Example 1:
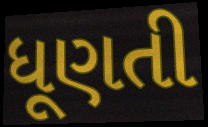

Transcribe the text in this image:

ધૂણતી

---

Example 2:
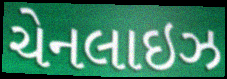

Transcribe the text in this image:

ચેનલાઇઝ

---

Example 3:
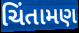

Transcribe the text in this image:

ચિંતામણ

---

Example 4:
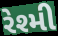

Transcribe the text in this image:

રેશ્મી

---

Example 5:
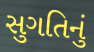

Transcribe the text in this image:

સુગતિનું